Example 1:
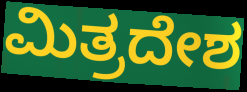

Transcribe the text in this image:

ಮಿತ್ರದೇಶ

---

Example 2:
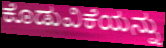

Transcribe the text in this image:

ಕೊಡುವಿಕೆಯನ್ನು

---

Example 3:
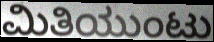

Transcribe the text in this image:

ಮಿತಿಯುಂಟು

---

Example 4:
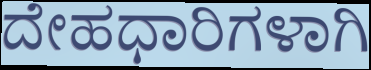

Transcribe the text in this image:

ದೇಹಧಾರಿಗಳಾಗಿ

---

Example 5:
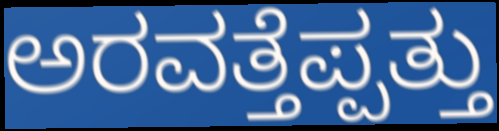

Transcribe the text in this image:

ಅರವತ್ತೆಪ್ಪತ್ತು